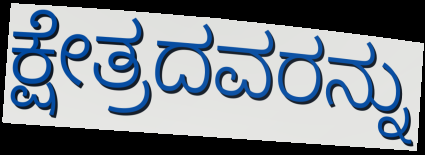
ಕ್ಷೇತ್ರದವರನ್ನು